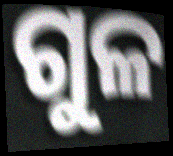
ଗୁଳ